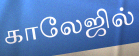
காலேஜில்